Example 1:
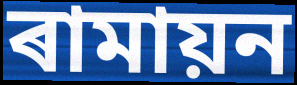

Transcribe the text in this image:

ৰামায়ন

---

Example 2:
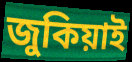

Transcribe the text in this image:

জুকিয়াই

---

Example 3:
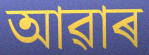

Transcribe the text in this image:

আৱাৰ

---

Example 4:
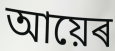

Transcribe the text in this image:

আয়েৰ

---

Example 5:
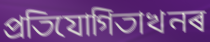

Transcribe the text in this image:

প্ৰতিযোগিতাখনৰ